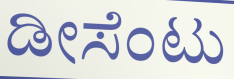
ಡೀಸೆಂಟು